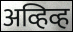
अव्हिव्ह